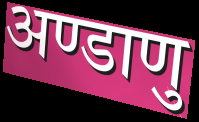
अण्डाणु